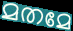
മതമേ